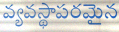
వ్యవస్థాపరమైన